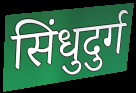
सिंधुदुर्ग